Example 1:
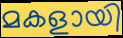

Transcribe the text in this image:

മകളായി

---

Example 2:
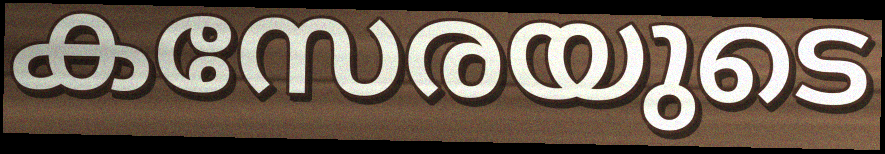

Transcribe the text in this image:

കസേരയുടെ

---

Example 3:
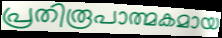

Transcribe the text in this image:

പ്രതിരൂപാത്മകമായ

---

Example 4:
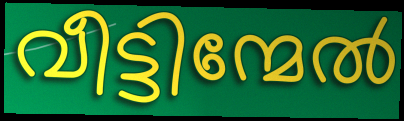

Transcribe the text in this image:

വീട്ടിന്മേൽ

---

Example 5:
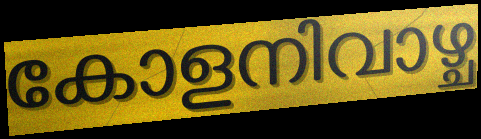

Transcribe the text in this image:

കോളനിവാഴ്ച